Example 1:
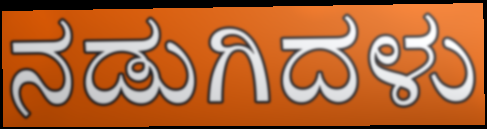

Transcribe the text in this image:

ನಡುಗಿದಳು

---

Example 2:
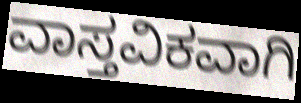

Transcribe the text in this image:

ವಾಸ್ತವಿಕವಾಗಿ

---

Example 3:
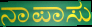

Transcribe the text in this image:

ನಾಪಾಸು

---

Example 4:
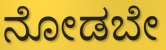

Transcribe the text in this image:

ನೋಡಬೇ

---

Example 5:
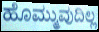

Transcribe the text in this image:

ಹೊಮ್ಮುವುದಿಲ್ಲ